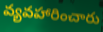
వ్యవహారించారు